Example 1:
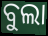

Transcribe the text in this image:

ବୁଲା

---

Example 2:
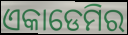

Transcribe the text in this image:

ଏକାଡେମିର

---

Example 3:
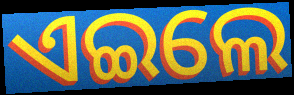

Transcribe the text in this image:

ଏଇଲେ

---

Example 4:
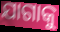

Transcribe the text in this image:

ଯାଗାକୁ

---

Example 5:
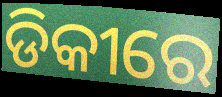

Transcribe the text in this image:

ଡିକୀରେ